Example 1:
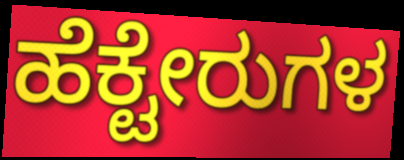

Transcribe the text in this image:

ಹೆಕ್ಟೇರುಗಳ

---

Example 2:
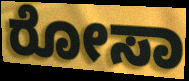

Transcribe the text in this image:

ರೋಸಾ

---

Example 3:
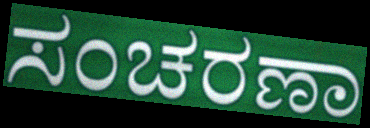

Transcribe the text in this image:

ಸಂಚರಣಾ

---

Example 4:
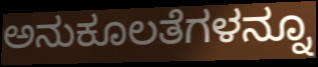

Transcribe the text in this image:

ಅನುಕೂಲತೆಗಳನ್ನೂ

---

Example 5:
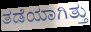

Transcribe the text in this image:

ತಡೆಯಾಗಿತ್ತು